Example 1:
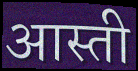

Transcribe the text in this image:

आस्ती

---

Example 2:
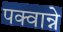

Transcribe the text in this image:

पक्वान्ने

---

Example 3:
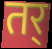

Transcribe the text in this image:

तर्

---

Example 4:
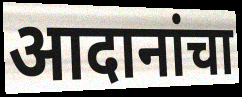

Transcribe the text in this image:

आदानांचा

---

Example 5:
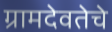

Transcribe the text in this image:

ग्रामदेवतेचे